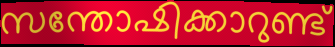
സന്തോഷിക്കാറുണ്ട്